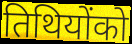
तिथियोंको